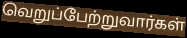
வெறுப்பேற்றுவார்கள்